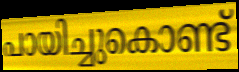
പായിച്ചുകൊണ്ട്